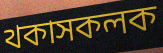
থকাসকলক